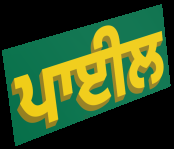
ਪਾਈਲ